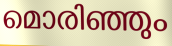
മൊരിഞ്ഞും